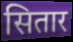
सितार